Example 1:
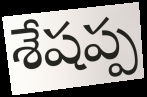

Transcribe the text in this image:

శేషప్ప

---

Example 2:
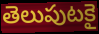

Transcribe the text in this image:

తెలుపుటకై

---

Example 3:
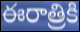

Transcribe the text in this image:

ఈరాత్రికి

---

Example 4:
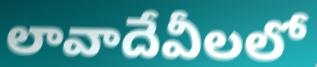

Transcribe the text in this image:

లావాదేవీలలో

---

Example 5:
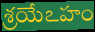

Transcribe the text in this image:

శ్రయేఽహం